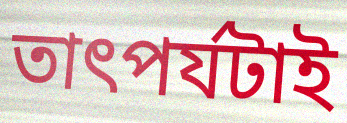
তাৎপর্যটাই